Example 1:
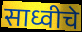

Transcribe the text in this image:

साध्वीचे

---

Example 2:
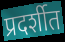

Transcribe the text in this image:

प्रदर्शीत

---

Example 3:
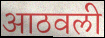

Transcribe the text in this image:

आठवली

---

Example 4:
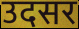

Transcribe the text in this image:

उदसर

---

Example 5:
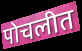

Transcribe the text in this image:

पोचलीत